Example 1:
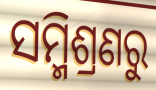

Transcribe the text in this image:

ସମ୍ମିଶ୍ରଣରୁ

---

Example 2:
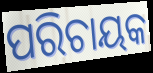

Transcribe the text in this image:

ପରିଚାୟକ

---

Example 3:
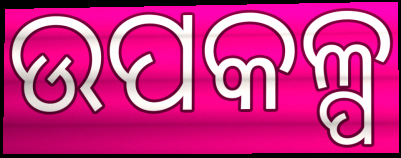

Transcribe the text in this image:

ଉପକଳ୍ପ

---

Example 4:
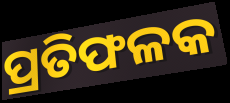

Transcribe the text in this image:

ପ୍ରତିଫଳକ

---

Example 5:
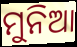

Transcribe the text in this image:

ମୁନିଆ